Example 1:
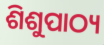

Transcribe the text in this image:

ଶିଶୁପାଠ୍ୟ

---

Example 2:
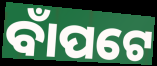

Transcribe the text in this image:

ବାଁପଟେ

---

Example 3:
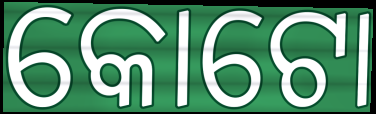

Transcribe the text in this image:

କୋଟୋ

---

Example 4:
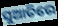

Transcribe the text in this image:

ସୁଆତିରେ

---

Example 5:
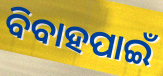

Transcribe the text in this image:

ବିବାହପାଇଁ